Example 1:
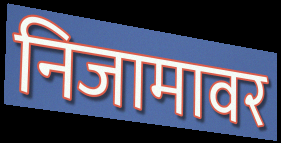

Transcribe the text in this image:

निजामावर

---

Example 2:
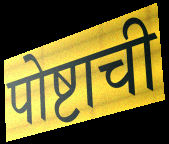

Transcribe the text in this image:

पोष्टाची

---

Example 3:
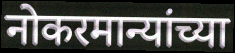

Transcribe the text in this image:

नोकरमान्यांच्या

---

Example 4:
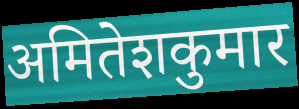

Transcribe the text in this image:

अमितेशकुमार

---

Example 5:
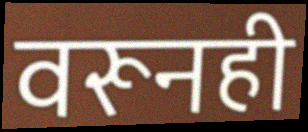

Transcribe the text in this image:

वरूनही